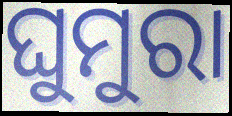
ଘୁମୁରା